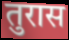
तुरास